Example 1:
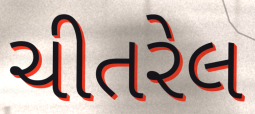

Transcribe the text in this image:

ચીતરેલ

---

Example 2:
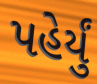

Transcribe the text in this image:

પહેર્યું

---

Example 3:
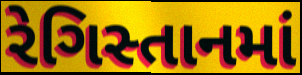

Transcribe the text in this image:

રેગિસ્તાનમાં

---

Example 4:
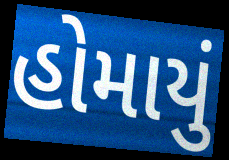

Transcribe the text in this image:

હોમાયું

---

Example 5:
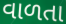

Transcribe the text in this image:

વાળતા